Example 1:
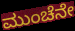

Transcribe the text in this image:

ಮುಂಚೆನೇ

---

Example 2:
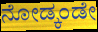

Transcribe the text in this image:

ನೋಡ್ಕಂಡೇ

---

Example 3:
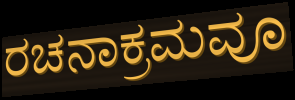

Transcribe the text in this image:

ರಚನಾಕ್ರಮವೂ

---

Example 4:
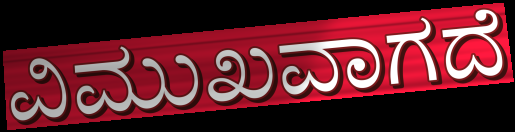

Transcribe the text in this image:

ವಿಮುಖವಾಗದೆ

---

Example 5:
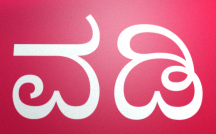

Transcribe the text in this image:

ವಡಿ